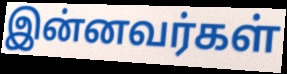
இன்னவர்கள்